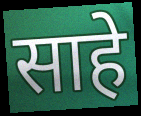
साहे